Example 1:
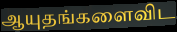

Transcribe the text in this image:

ஆயுதங்களைவிட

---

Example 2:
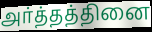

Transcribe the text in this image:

அர்த்தத்தினை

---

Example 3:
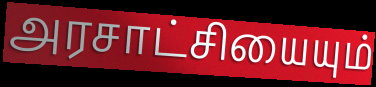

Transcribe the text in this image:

அரசாட்சியையும்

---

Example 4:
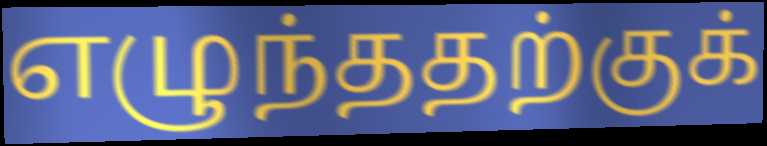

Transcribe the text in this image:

எழுந்ததற்குக்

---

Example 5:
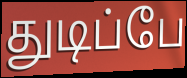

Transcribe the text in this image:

துடிப்பே